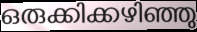
ഒരുക്കിക്കഴിഞ്ഞു